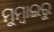
ମୁମ୍ବାଇରୁ